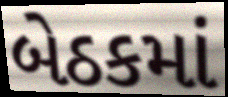
બેઠકમાં